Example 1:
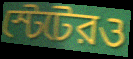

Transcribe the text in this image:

স্টেটেরও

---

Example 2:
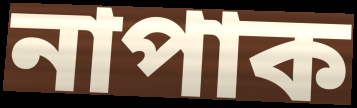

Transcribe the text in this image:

নাপাক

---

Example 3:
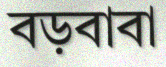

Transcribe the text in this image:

বড়বাবা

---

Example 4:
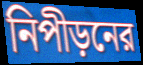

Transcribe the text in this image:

নিপীড়নের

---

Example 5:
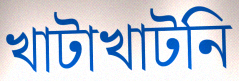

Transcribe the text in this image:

খাটাখাটনি